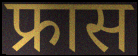
फ्रास